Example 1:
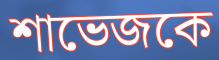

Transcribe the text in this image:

শাভেজকে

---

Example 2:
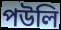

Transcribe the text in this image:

পউলি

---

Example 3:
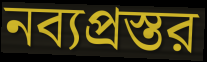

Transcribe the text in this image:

নব্যপ্রস্তর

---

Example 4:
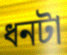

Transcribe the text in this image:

ধনটা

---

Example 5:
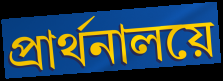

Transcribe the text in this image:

প্রার্থনালয়ে